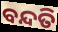
ବନ୍ଦତି